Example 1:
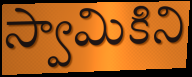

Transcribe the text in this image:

స్వామికిని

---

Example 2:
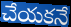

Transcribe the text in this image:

చేయకనే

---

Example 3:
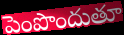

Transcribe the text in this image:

పెంపొందుతూ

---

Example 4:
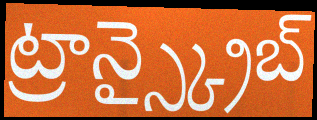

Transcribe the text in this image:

ట్రాన్స్క్రైబ్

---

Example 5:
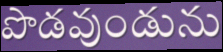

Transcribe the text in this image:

పొడవుండును